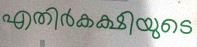
എതിർകക്ഷിയുടെ